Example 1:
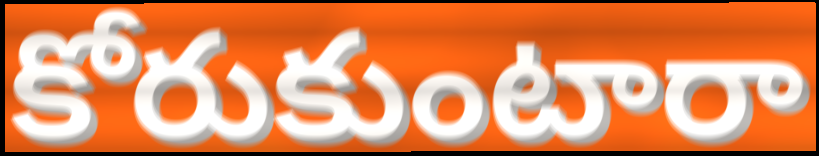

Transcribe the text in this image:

కోరుకుంటారా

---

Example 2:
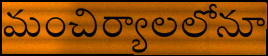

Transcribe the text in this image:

మంచిర్యాలలోనూ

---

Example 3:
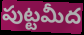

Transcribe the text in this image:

పుట్టమీద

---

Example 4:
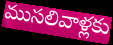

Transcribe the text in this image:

ముసలివాళ్లకు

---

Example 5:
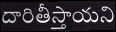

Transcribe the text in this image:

దారితీస్తాయని